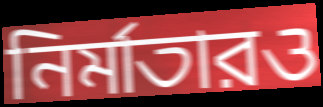
নির্মাতারও